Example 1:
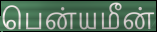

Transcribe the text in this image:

பென்யமீன்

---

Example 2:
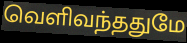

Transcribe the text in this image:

வெளிவந்ததுமே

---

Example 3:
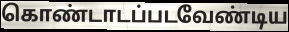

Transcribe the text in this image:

கொண்டாடப்படவேண்டிய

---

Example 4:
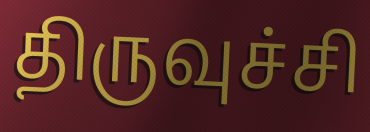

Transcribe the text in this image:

திருவுச்சி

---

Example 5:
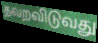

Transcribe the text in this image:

தவறவிடுவது